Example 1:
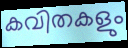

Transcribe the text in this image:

കവിതകളും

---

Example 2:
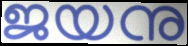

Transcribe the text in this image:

ജയനു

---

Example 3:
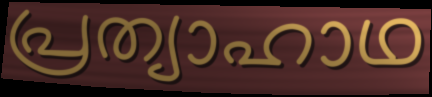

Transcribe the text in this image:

പ്രത്യാഹാഥ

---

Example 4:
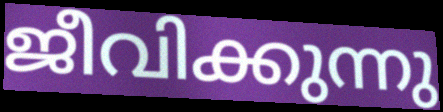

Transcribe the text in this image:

ജീവിക്കുന്നു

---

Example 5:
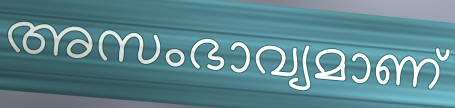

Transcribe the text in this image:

അസംഭാവ്യമാണ്